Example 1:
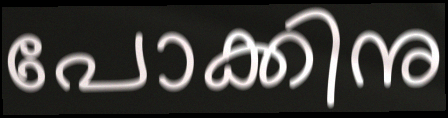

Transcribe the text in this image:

പോക്കിനു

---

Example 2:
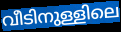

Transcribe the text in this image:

വീടിനുള്ളിലെ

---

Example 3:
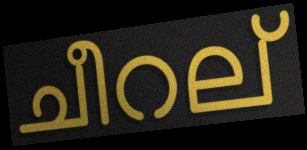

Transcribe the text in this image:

ചീറല്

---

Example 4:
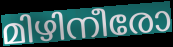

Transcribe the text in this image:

മിഴിനീരോ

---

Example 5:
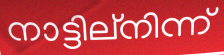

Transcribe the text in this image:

നാട്ടില്നിന്ന്